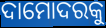
ଦାମୋଦରକୁ